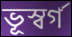
ভূস্বর্গ